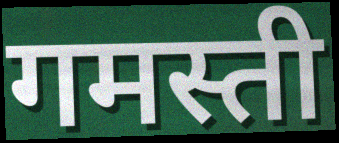
गमस्ती